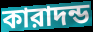
কারাদন্ড